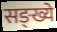
सङ्ख्ये